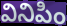
వినిపిం